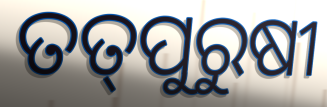
ତତ୍‌ପୁରୁଷୀ